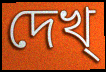
দেখ্